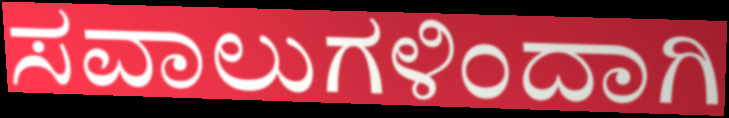
ಸವಾಲುಗಳಿಂದಾಗಿ